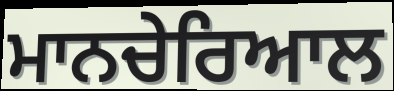
ਮਾਨਚੇਰਿਆਲ